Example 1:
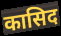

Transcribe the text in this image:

कासिद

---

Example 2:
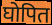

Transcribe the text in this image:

घोपित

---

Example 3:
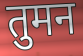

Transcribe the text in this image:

तुमन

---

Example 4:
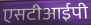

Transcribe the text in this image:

एसटीआईपी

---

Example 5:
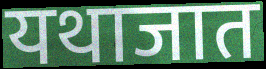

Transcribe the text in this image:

यथाजात